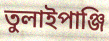
তুলাইপাঞ্জি